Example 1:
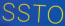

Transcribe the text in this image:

SSTO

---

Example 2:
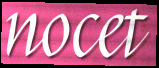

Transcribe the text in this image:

nocet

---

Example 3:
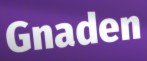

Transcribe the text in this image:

Gnaden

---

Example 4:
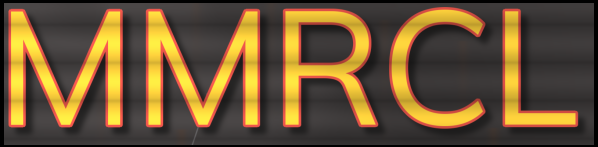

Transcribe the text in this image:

MMRCL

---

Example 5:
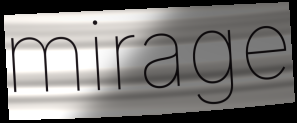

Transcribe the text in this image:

mirage